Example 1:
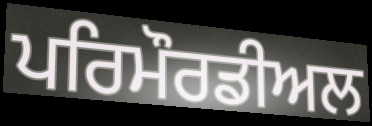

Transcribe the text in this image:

ਪਰਿਮੌਰਡੀਅਲ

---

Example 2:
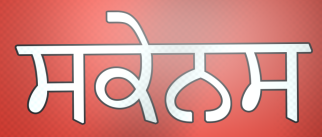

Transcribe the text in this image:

ਸਕੇਨਸ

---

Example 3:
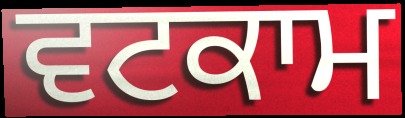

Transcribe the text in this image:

ਵਟਕਾਮ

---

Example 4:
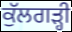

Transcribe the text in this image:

ਕੁੱਲਗੜ੍ਹੀ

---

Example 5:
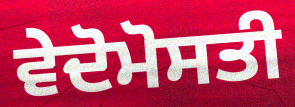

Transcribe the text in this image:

ਵੇਦੋਮੋਸਤੀ